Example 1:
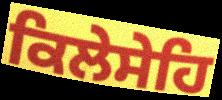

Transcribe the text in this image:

ਕਿਲੇਸੇਹਿ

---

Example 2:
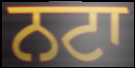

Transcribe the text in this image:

ਨਟਾ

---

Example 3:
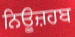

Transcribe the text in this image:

ਨਿਊਜ਼ਹਬ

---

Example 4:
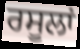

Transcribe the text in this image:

ਰਸੂਲਾਂ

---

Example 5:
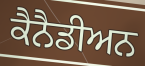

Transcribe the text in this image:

ਕੈਨੈਡੀਅਨ